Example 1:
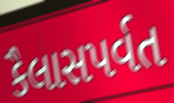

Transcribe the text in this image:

કૈલાસપર્વત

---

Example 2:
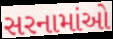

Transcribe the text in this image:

સરનામાંઓ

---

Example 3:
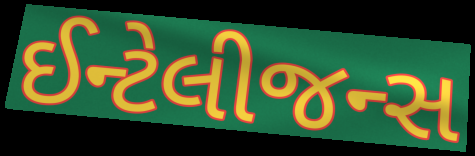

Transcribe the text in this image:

ઈન્ટેલીજન્સ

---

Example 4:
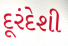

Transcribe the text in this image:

દૂરંદેશી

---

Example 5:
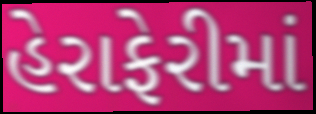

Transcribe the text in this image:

હેરાફેરીમાં